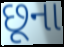
છૂના